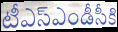
టీఎస్ఎండీసీకి